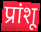
प्रांशू